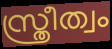
സ്ത്രീത്വം